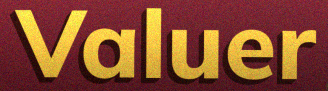
Valuer